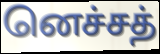
னெச்சத்